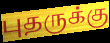
புதருக்கு